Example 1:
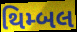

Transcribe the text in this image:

થિમ્બલ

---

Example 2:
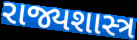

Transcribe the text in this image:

રાજ્યશાસ્ત્ર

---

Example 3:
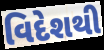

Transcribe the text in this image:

વિદેશથી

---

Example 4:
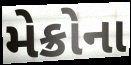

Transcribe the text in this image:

મેક્રોના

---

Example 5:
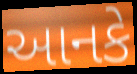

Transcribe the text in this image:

આનકે